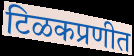
टिळकप्रणीत